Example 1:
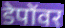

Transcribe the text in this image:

डेपोंवर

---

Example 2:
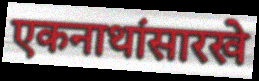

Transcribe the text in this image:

एकनाथांसारखे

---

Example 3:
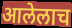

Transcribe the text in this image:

आलेलाच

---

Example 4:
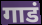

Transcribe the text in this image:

गाडं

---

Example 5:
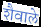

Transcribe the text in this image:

शैवाले